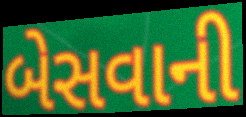
બેસવાની